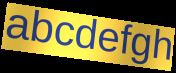
abcdefgh